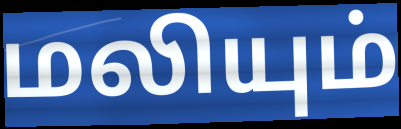
மலியும்